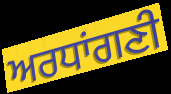
ਅਰਧਾਂਗਣੀ